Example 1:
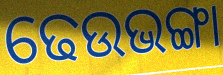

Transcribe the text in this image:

ଢେଉଭଙ୍ଗା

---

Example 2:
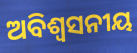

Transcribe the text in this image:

ଅବିଶ୍ବସନୀୟ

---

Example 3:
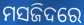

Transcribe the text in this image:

ମସଜିଦରେ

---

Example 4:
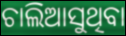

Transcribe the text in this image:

ଚାଲିଆସୁଥିବା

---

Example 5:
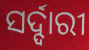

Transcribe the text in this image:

ସର୍ଦ୍ଦାରୀ